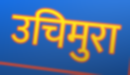
उचिमुरा